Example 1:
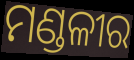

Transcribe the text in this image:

ମଣ୍ଡଳୀର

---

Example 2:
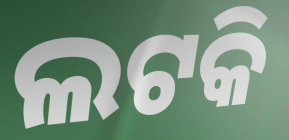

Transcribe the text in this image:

ଲଟକି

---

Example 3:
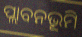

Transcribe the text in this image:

ପ୍ଲାବନଭୂମି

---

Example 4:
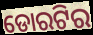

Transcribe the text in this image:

ଡୋରଟିର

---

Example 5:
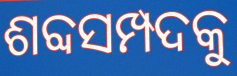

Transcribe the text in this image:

ଶବ୍ଦସମ୍ପଦକୁ